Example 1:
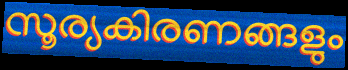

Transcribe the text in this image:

സൂര്യകിരണങ്ങളും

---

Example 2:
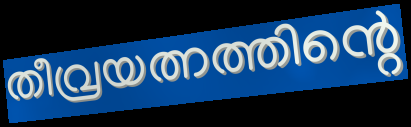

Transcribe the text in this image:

തീവ്രയത്നത്തിന്റെ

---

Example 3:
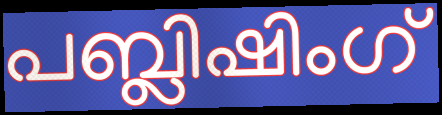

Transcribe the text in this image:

പബ്ലിഷിംഗ്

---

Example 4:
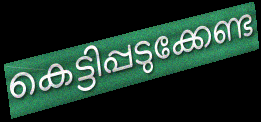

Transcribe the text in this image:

കെട്ടിപ്പടുക്കേണ്ട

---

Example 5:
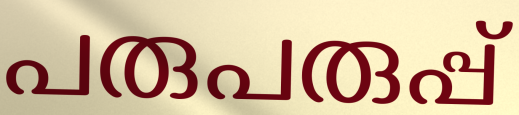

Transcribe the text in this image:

പരുപരുപ്പ്